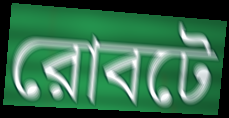
রোবটে